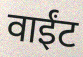
वाईंट